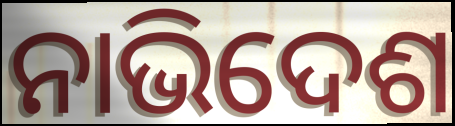
ନାଭିଦେଶ